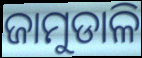
ଜାମୁଡାଳି